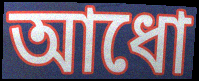
আধো